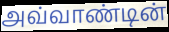
அவ்வாண்டின்